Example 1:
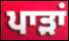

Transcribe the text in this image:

ਪਾੜਾਂ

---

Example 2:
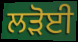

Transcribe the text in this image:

ਲੜੋਈ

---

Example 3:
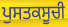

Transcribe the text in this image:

ਪੁਸਤਕਸੂਚੀ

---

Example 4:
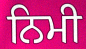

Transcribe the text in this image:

ਨਿਮੀ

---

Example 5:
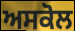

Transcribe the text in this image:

ਅਸਕੋਲ